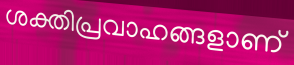
ശക്തിപ്രവാഹങ്ങളാണ്